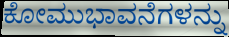
ಕೋಮುಭಾವನೆಗಳನ್ನು